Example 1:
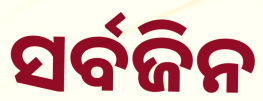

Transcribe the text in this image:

ସର୍ବଜିନ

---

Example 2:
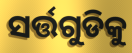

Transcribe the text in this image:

ସର୍ତ୍ତଗୁଡିକୁ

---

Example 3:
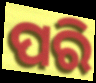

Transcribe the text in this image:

ପରି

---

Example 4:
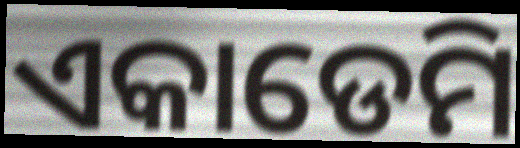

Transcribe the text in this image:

ଏକାଡେମି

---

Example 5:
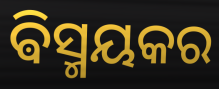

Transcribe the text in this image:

ଵିସ୍ମୟକର